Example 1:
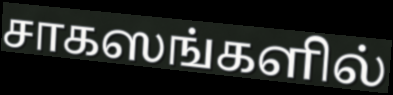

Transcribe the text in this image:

சாகஸங்களில்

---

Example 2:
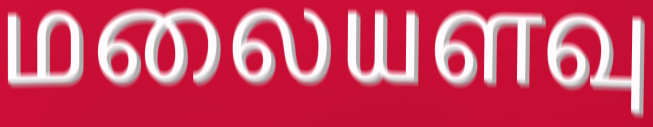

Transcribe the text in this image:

மலையளவு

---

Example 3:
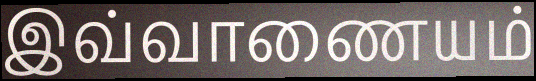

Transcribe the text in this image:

இவ்வாணையம்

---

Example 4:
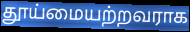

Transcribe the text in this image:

தூய்மையற்றவராக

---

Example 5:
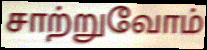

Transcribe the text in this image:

சாற்றுவோம்